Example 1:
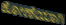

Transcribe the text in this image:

ಕೋಣೆಯಾಗಿ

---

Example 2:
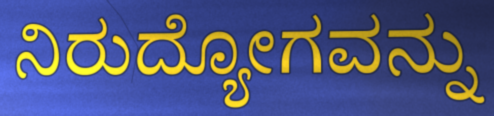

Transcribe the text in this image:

ನಿರುದ್ಯೋಗವನ್ನು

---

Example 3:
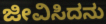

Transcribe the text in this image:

ಜೀವಿಸಿದನು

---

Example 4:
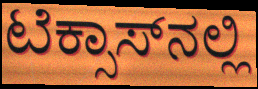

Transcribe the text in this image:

ಟೆಕ್ಸಾಸ್‌ನಲ್ಲಿ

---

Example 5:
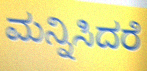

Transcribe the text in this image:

ಮನ್ನಿಸಿದರೆ